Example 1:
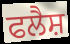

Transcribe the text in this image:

ਫਲੈਸ਼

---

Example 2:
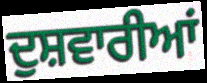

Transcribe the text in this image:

ਦੁਸ਼ਵਾਰੀਆਂ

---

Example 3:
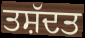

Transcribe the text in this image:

ਤਸ਼ੱਦਤ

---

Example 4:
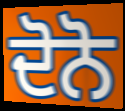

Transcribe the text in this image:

ਦੋਨੋ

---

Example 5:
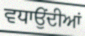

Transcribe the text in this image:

ਵਧਾਉਂਦੀਆਂ